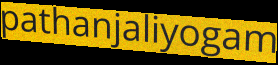
pathanjaliyogam